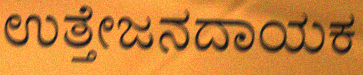
ಉತ್ತೇಜನದಾಯಕ